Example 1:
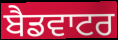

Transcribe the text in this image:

ਬੈਡਵਾਟਰ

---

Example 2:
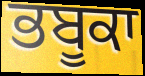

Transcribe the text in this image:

ਭਬੂਕਾ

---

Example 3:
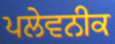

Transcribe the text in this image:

ਪਲੇਵਨੀਕ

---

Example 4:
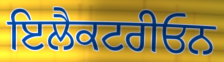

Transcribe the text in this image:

ਇਲੈਕਟਰੀਓਨ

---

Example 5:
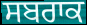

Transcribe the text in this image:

ਸਬਰਾਕ